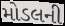
મોડલની